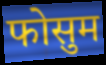
फोसुम